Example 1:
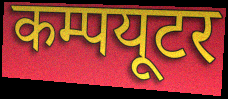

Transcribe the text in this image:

कम्पयूटर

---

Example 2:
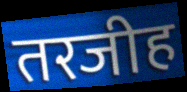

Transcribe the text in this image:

तरजीह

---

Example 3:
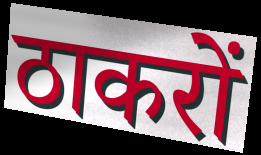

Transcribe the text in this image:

ठाकरों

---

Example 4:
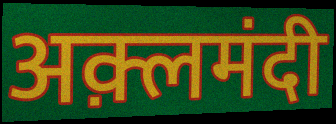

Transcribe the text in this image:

अक़्लमंदी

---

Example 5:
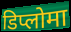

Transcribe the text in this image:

डिप्लोमा